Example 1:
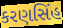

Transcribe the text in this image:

કરણસિંહ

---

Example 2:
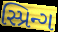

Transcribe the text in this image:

સ્પ્રિન્ગ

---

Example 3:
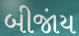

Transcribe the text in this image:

બીજાંય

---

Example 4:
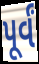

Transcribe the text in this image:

પૂર્વં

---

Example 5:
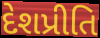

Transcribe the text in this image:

દેશપ્રીતિ